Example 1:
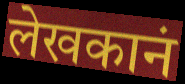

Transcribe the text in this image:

लेखकानं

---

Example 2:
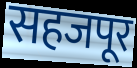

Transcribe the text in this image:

सहजपूर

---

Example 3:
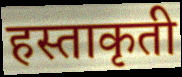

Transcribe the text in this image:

हस्ताकृती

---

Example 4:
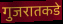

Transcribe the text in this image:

गुजरातकडे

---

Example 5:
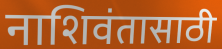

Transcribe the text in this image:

नाशिवंतासाठी